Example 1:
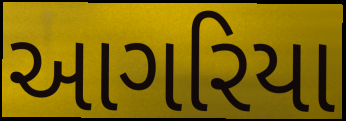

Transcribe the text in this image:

આગરિયા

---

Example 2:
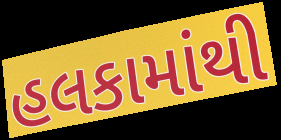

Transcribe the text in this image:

હલકામાંથી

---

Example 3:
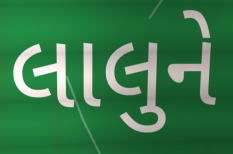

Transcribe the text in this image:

લાલુને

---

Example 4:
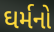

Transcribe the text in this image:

ઘર્મનો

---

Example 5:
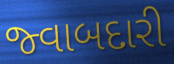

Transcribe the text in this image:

જ્વાબદારી